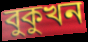
বুকুখন